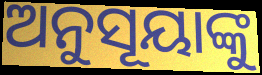
ଅନୁସୂୟାଙ୍କୁ